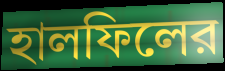
হালফিলের